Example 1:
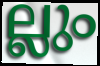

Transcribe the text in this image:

ല്ലും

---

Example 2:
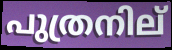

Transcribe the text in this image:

പുത്രനില്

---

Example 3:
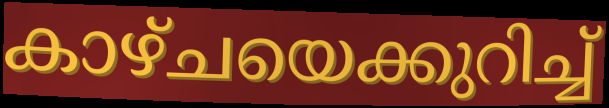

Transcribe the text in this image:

കാഴ്ചയെക്കുറിച്ച്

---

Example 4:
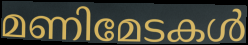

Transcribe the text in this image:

മണിമേടകൾ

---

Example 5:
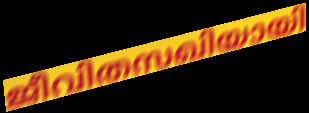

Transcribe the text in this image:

ജീവിതസഖിയായി